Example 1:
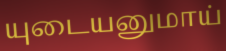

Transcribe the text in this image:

யுடையனுமாய்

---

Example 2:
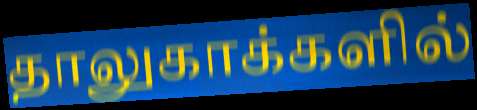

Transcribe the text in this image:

தாலுகாக்களில்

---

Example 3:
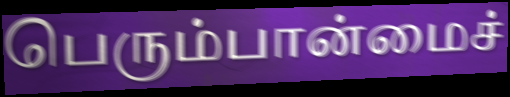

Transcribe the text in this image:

பெரும்பான்மைச்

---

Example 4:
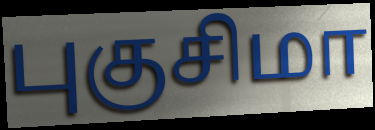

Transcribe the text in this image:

புகுசிமா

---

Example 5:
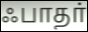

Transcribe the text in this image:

ஃபாதர்